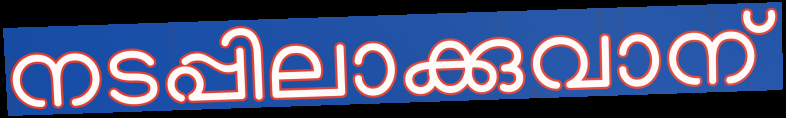
നടപ്പിലാക്കുവാന്